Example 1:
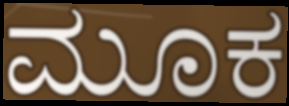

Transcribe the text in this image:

ಮೂಕ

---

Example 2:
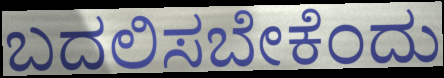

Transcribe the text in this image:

ಬದಲಿಸಬೇಕೆಂದು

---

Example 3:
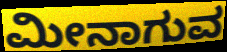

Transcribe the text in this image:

ಮೀನಾಗುವ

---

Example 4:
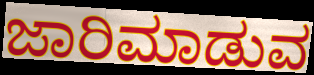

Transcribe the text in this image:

ಜಾರಿಮಾಡುವ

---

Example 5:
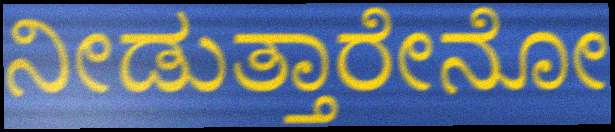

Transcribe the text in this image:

ನೀಡುತ್ತಾರೇನೋ